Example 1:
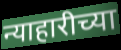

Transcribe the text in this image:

न्याहारीच्या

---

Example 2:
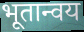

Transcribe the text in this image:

भूतान्वय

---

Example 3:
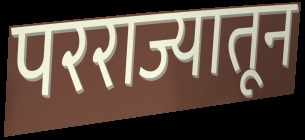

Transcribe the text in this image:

परराज्यातून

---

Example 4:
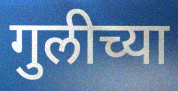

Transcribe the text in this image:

गुलीच्या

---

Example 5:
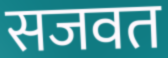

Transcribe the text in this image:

सजवत